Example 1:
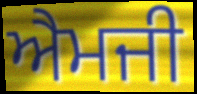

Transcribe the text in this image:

ਐਮਜੀ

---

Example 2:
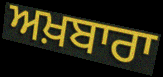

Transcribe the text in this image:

ਅਖ਼ਬਾਰਾ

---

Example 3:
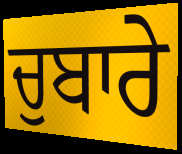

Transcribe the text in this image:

ਚੁਬਾਰੇ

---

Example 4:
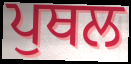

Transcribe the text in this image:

ਪੁਥਲ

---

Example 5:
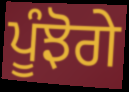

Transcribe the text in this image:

ਪੂੰਝੋਗੇ